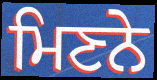
ਮਿਣਨੇ